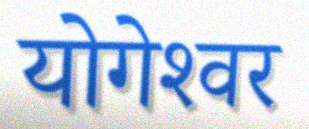
योगेश्‍वर